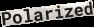
Polarized